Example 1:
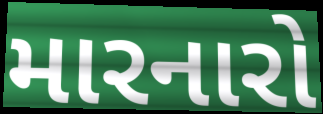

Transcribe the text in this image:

મારનારો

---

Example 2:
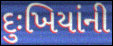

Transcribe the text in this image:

દુઃખિયાંની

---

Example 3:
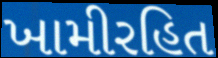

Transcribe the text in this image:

ખામીરહિત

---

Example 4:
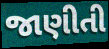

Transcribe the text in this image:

જાણીતી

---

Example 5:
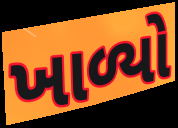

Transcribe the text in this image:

ખાળ્યો